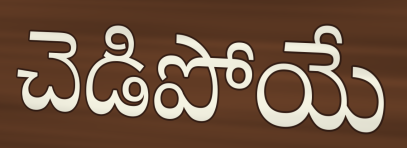
చెడిపోయే